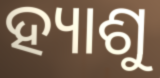
ହ୍ୟାଶୁ